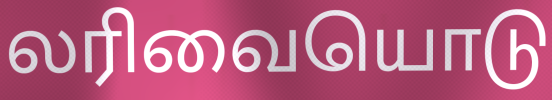
லரிவையொடு